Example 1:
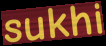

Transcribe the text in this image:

sukhi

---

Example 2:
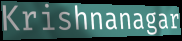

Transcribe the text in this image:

Krishnanagar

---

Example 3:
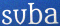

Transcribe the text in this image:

suba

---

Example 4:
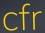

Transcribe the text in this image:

cfr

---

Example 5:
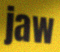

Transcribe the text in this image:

jaw